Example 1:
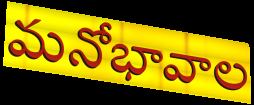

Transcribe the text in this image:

మనోభావాల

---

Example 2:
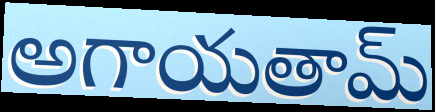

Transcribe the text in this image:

అగాయతామ్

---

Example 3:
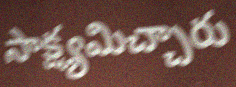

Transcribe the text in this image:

సాక్ష్యమిచ్చారు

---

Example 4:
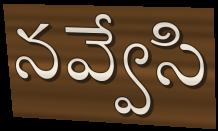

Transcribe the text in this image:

నవ్వేసి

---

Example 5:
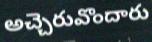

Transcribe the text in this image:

అచ్చెరువొందారు